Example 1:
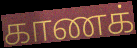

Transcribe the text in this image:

காணக்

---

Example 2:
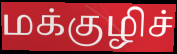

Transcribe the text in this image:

மக்குழிச்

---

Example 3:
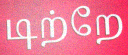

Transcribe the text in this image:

டிற்றே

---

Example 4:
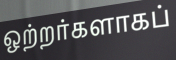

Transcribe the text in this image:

ஒற்றர்களாகப்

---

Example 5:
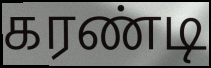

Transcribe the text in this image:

கரண்டி